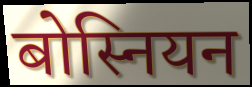
बोस्नियन